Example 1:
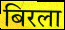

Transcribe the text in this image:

बिरला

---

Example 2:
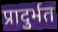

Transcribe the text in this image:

प्रादुर्भत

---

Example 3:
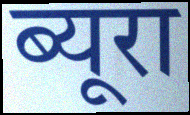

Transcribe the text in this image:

ब्यूरा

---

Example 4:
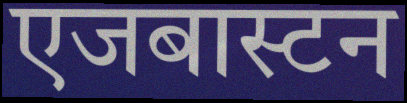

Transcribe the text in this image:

एजबास्टन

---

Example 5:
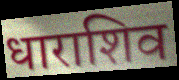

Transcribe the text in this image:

धाराशिव